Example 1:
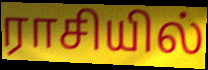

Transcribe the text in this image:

ராசியில்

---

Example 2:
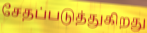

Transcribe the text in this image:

சேதப்படுத்துகிறது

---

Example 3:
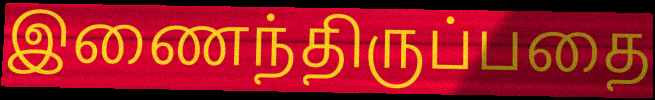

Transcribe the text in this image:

இணைந்திருப்பதை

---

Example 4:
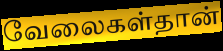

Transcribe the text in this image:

வேலைகள்தான்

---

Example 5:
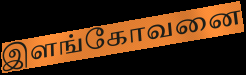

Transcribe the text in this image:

இளங்கோவனை